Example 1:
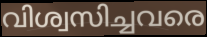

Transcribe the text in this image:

വിശ്വസിച്ചവരെ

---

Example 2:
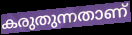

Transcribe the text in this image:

കരുതുന്നതാണ്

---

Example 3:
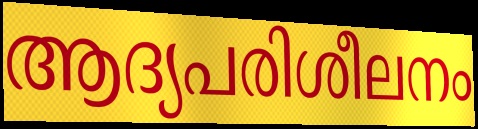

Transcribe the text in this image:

ആദ്യപരിശീലനം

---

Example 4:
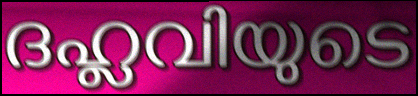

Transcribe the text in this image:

ദഹ്ലവിയുടെ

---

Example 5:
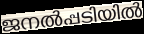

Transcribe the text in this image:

ജനൽപ്പടിയിൽ